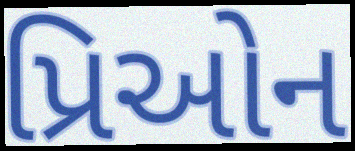
પ્રિઓન